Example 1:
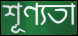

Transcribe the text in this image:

শূণ্যতা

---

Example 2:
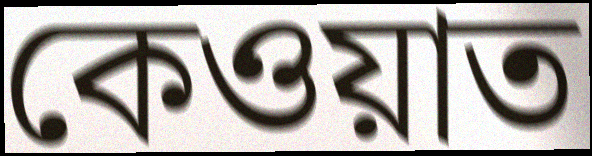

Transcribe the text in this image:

কেওয়াত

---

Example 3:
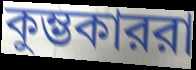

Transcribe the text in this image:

কুম্ভকাররা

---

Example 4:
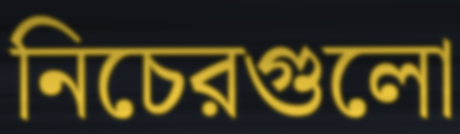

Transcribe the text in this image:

নিচেরগুলো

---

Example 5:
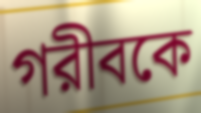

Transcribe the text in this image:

গরীবকে